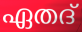
ഏതദ്